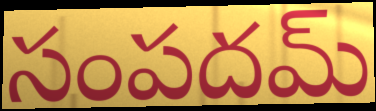
సంపదమ్